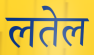
लतेल